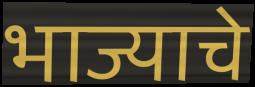
भाज्याचे